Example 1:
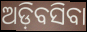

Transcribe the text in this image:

ଅଡ଼ିବସିବା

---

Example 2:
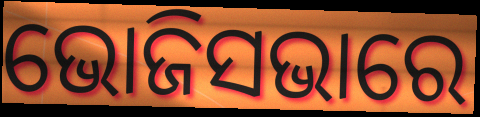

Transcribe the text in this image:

ଭୋଜିସଭାରେ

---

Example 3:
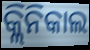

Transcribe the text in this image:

କ୍ଲିନିକାଲ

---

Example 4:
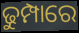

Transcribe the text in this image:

ଢୁମ୍ପାରେ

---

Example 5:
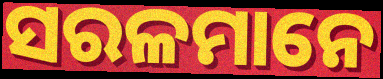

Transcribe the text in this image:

ସରଳମାନେ